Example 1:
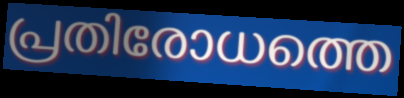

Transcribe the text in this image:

പ്രതിരോധത്തെ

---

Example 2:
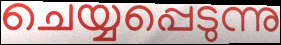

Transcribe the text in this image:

ചെയ്യപ്പെടുന്നു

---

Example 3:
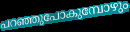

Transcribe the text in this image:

പറഞ്ഞുപോകുമ്പോഴും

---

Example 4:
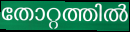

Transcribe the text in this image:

തോറ്റത്തിൽ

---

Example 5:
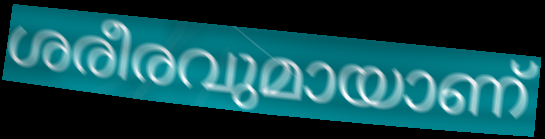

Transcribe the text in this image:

ശരീരവുമായാണ്